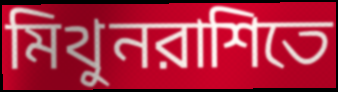
মিথুনরাশিতে